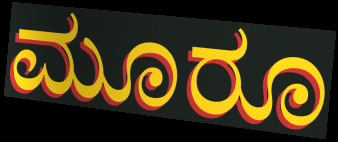
ಮೂರೂ